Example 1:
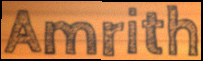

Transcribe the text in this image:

Amrith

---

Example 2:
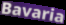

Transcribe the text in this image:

Bavaria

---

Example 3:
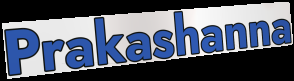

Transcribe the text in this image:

Prakashanna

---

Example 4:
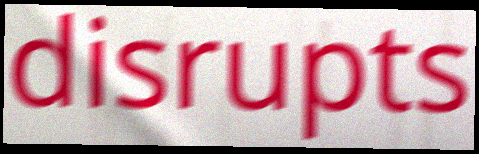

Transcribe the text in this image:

disrupts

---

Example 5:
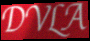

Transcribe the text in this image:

DVLA